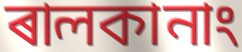
ৰালকানাং